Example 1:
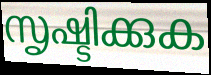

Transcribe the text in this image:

സൃഷ്ടിക്കുക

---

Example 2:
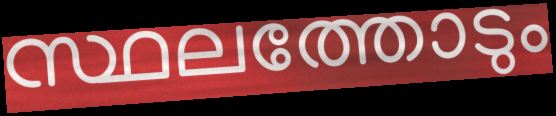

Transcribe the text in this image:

സ്ഥലത്തോടും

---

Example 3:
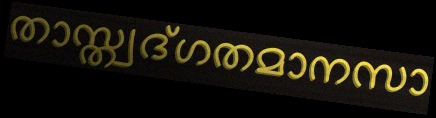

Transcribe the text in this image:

താസ്ത്വദ്ഗതമാനസാ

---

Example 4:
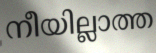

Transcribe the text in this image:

നീയില്ലാത്ത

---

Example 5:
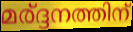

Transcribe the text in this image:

മര്ദ്ദനത്തിന്